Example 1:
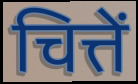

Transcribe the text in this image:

चित्तें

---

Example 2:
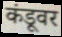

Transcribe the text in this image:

कंडूवर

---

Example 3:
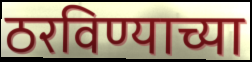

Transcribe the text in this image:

ठरविण्याच्या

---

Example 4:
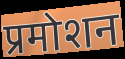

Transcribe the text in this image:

प्रमोशन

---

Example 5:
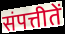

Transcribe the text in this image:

संपत्तीतें